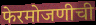
फेरमोजणीची